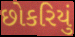
છોકરિયું